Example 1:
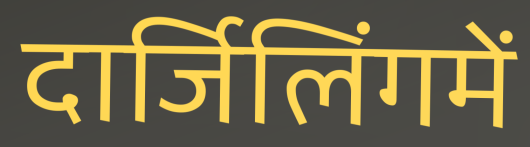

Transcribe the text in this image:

दार्जिलिंगमें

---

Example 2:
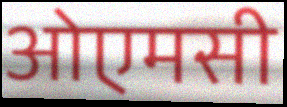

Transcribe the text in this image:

ओएमसी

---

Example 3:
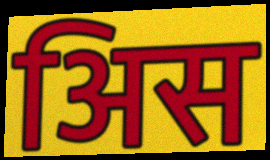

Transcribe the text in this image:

अिस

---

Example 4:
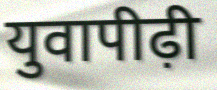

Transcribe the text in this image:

युवापीढ़ी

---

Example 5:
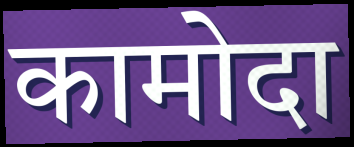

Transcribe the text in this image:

कामोदा